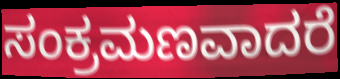
ಸಂಕ್ರಮಣವಾದರೆ